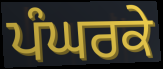
ਪੰਘਰਕੇ